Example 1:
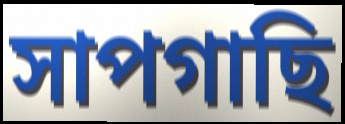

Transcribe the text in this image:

সাপগাছি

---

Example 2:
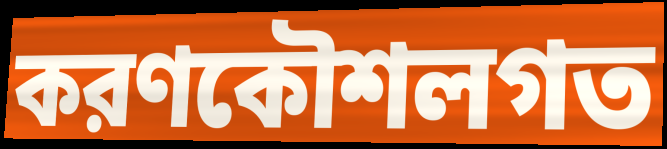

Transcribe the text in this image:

করণকৌশলগত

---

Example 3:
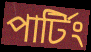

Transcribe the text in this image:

পার্টিং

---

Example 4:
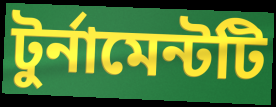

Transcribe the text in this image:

টুর্নামেন্টটি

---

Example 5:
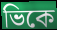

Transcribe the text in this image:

ভিকে